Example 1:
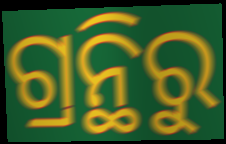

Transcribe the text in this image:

ଗ୍ରନ୍ଥିରୁ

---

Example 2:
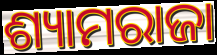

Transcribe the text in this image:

ଶ୍ୟାମରାଜା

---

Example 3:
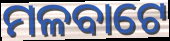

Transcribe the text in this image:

ମଳବାଟେ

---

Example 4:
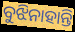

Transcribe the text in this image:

ବୁଝିନାହାନ୍ତି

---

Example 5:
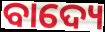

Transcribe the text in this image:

ବାଦ୍ୟେ